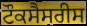
ਟੌਕਸੈਸਰੀਸ